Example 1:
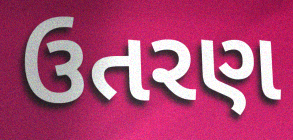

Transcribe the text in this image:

ઉતરણ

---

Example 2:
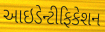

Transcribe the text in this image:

આઇડેન્ટીફિકેશન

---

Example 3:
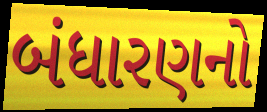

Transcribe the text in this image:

બંધારણનો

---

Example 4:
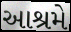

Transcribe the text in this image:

આશ્રમે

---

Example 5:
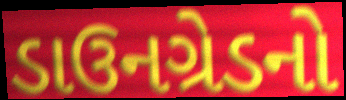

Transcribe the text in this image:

ડાઉનગ્રેડનો